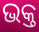
ଭକ୍ତ